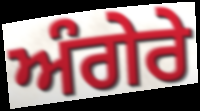
ਅੰਗੇਰੇ